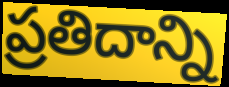
ప్రతిదాన్ని